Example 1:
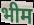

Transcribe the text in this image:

भीम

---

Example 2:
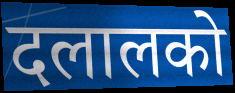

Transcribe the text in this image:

दलालको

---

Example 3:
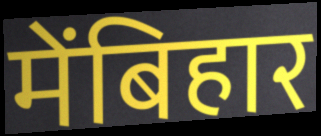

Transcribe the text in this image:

मेंबिहार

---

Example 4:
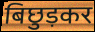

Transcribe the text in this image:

बिछुड़कर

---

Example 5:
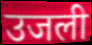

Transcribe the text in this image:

उजली